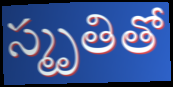
స్మృతితో